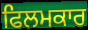
ਫਿਲਮਕਾਰ